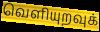
வெளியுறவுக்